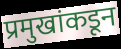
प्रमुखांकडून